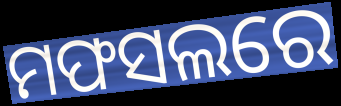
ମଫସଲରେ